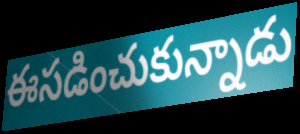
ఈసడించుకున్నాడు